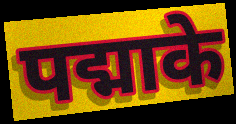
पद्माके